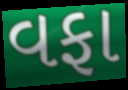
વફા